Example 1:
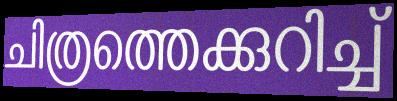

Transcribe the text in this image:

ചിത്രത്തെക്കുറിച്ച്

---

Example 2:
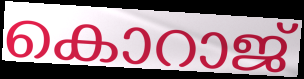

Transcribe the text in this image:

കൊറാജ്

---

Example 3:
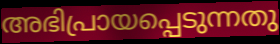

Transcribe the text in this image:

അഭിപ്രായപ്പെടുന്നതു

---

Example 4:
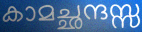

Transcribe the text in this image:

കാമച്ഛന്ദസ്സ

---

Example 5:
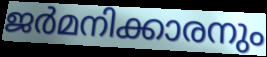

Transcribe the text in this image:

ജർമനിക്കാരനും